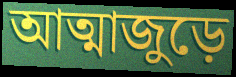
আত্মাজুড়ে